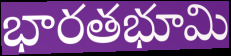
భారతభూమి